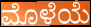
ಮೊಳೆಯೆ